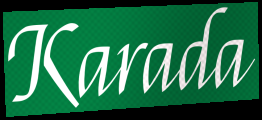
Karada